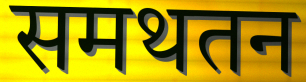
समथतन